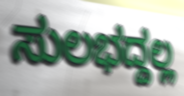
ಸುಲಭದ್ದಲ್ಲ